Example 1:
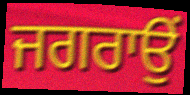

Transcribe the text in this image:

ਜਗਰਾਉਂ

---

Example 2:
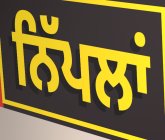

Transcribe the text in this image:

ਨਿੱਪਲਾਂ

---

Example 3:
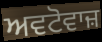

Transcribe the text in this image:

ਅਵਟੋਵਾਜ਼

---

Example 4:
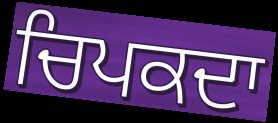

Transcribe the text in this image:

ਚਿਪਕਦਾ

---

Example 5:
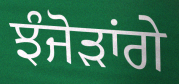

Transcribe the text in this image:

ਝੰਜੋੜਾਂਗੇ